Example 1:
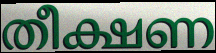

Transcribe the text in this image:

തീക്ഷണ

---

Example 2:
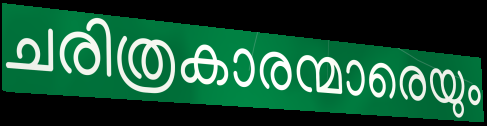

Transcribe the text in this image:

ചരിത്രകാരന്മാരെയും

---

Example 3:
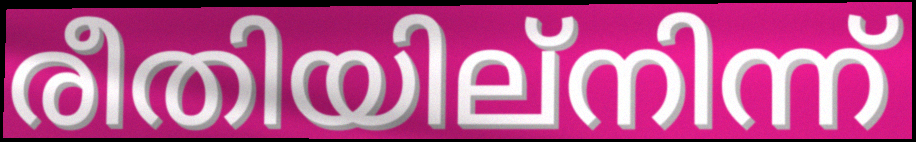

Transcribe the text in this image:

രീതിയില്നിന്ന്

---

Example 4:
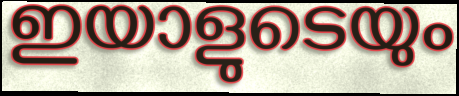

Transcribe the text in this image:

ഇയാളുടെയും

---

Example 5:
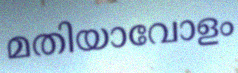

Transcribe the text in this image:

മതിയാവോളം